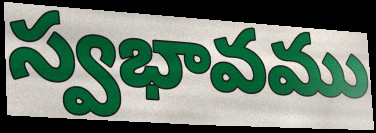
స్వభావము